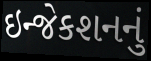
ઇન્જેકશનનું